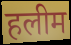
हलीम